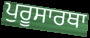
ਪੁਰੂਸਾਰਥਾ